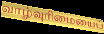
வாழ்வுரிமையைப்